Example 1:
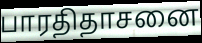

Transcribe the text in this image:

பாரதிதாசனை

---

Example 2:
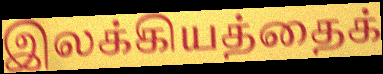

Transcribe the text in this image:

இலக்கியத்தைக்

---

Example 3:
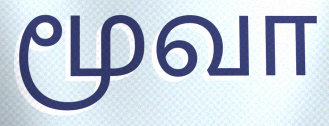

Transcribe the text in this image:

மூவா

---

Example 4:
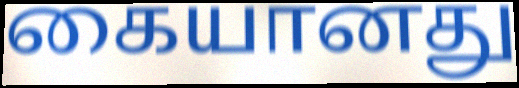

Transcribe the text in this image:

கையானது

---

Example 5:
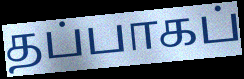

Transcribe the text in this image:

தப்பாகப்